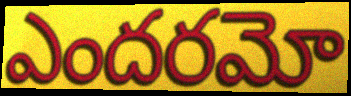
ఎందరమో